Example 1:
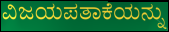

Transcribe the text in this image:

ವಿಜಯಪತಾಕೆಯನ್ನು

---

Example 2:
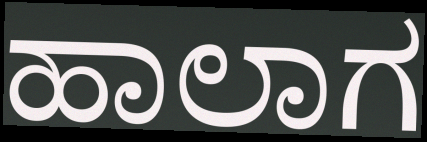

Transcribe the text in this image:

ಹಾಲಾಗ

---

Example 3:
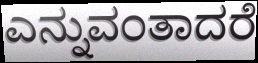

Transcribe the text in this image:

ಎನ್ನುವಂತಾದರೆ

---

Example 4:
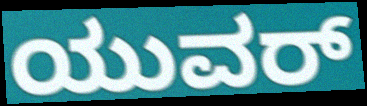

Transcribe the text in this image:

ಯುವರ್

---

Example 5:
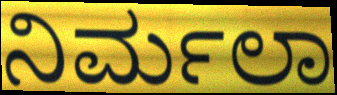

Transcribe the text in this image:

ನಿರ್ಮಲಾ